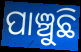
ପାଞ୍ଚୁଛି